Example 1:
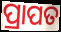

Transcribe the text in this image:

ପ୍ରାପତ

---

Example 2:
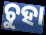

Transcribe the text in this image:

ଚୁହା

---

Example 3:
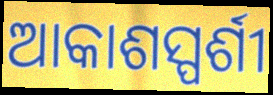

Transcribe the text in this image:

ଆକାଶସ୍ପର୍ଶୀ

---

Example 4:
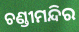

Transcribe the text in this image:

ଚଣ୍ଡୀମନ୍ଦିର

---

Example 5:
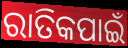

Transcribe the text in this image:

ରାତିକପାଇଁ